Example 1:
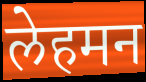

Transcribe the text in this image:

लेहमन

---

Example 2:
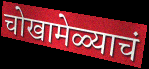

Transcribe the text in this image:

चोखामेळ्याचं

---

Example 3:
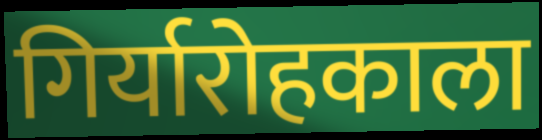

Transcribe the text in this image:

गिर्यारोहकाला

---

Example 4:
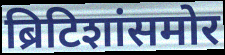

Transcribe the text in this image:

ब्रिटिशांसमोर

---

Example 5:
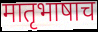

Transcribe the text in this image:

मातृभाषाच